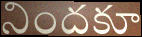
నిందకూ